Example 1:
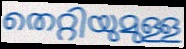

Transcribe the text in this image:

തെറ്റിയുമുള്ള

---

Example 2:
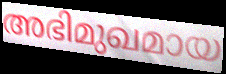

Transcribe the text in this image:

അഭിമുഖമായ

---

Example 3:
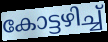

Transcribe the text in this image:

കോട്ടഴിച്ച്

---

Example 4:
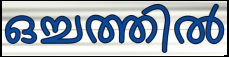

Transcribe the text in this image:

ഒച്ചത്തിൽ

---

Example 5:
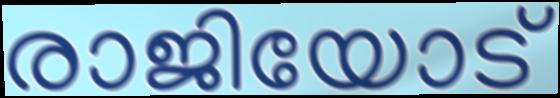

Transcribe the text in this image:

രാജിയോട്